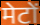
मेटों